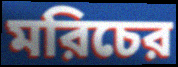
মরিচের